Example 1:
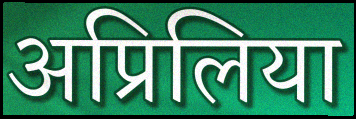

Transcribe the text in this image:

अप्रिलिया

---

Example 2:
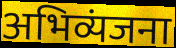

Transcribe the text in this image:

अभिव्यंजना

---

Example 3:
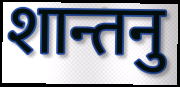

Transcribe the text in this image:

शान्तनु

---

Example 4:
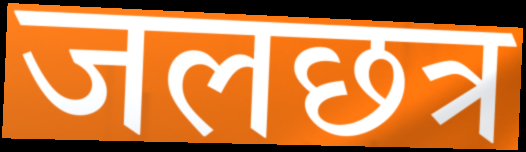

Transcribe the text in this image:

जलछत्र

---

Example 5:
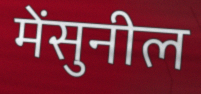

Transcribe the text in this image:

मेंसुनील